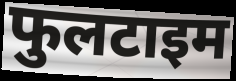
फुलटाइम